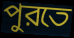
পুরতে